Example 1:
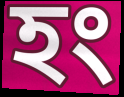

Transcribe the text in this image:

হং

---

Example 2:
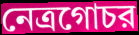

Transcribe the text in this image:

নেত্রগোচর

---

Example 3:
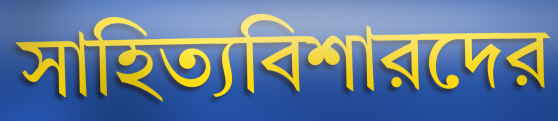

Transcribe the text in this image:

সাহিত্যবিশারদের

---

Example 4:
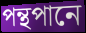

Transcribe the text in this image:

পন্থপানে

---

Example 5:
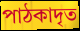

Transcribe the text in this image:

পাঠকাদৃত